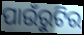
ପାଉଁରୁଟିର